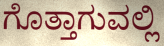
ಗೊತ್ತಾಗುವಲ್ಲಿ